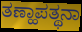
ತಣ್ಹಾಪತ್ಥನಾ